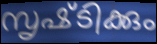
സൃഷ്‌ടിക്കും